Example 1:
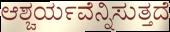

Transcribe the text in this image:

ಆಶ್ಚರ್ಯವೆನ್ನಿಸುತ್ತದೆ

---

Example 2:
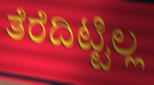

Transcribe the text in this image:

ತೆರೆದಿಟ್ಟಿಲ್ಲ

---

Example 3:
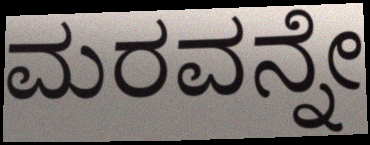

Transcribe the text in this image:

ಮರವನ್ನೇ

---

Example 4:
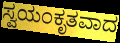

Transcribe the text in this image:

ಸ್ವಯಂಕೃತವಾದ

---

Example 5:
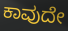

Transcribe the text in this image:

ಕಾವುದೇ